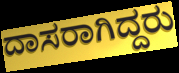
ದಾಸರಾಗಿದ್ದರು